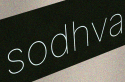
sodhva